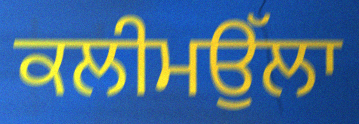
ਕਲੀਮਉੱਲਾ